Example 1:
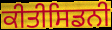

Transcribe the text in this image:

ਕੀਤੀਸਿਡਨੀ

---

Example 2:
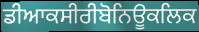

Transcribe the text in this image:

ਡੀਆਕਸੀਰੀਬੋਨਿਊਕਲਿਕ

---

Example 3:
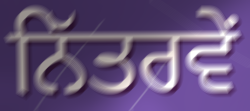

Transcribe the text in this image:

ਨਿੱਤਰਵੇਂ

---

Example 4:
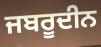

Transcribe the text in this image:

ਜਬਰੂਦੀਨ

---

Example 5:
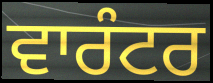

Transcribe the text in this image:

ਵਾਰੰਟਰ